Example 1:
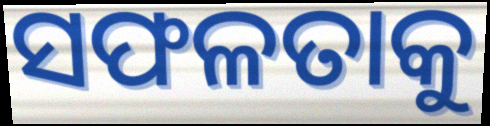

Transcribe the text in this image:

ସଫଳତାକୁ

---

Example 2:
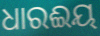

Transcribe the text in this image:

ଧାରଈୟ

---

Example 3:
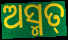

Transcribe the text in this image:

ଅସ୍ମତ୍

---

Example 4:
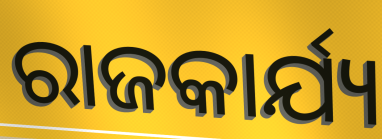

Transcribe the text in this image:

ରାଜକାର୍ଯ୍ୟ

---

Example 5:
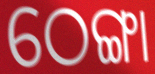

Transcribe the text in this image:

ଠେଙ୍ଗା